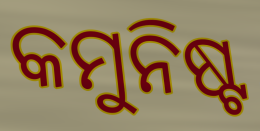
କମୁନିଷ୍ଟ